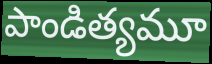
పాండిత్యమూ